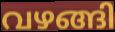
വഴങ്ങി